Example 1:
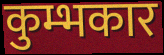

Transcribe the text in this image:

कुम्भकार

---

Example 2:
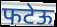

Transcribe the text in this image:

फटेऊ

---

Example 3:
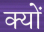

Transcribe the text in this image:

क्यों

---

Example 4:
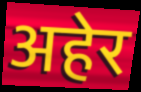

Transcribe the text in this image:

अहेर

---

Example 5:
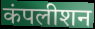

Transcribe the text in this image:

कंपलीशन